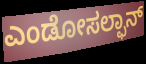
ಎಂಡೋಸಲ್ಫಾನ್